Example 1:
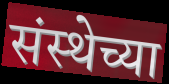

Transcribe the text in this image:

संस्थेच्या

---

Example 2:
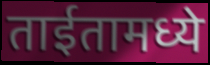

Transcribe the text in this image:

ताईतामध्ये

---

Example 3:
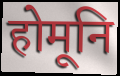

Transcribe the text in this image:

होमूनि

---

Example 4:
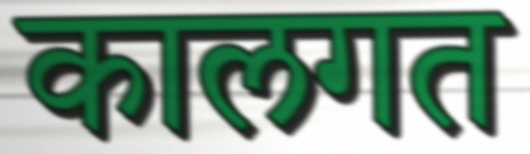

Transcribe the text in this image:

कालगत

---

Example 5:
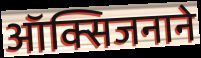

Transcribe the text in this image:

ऑक्सिजनाने